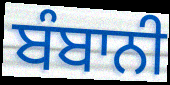
ਬੰਬਾਨੀ